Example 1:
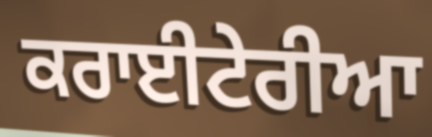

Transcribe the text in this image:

ਕਰਾਈਟੇਰੀਆ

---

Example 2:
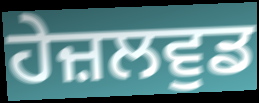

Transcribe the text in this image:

ਹੇਜ਼ਲਵੁਡ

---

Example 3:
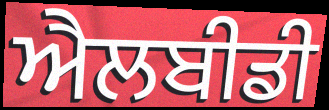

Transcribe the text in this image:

ਐਲਬੀਡੀ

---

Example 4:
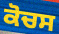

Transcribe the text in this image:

ਕੋਚਸ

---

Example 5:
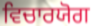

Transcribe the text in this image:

ਵਿਚਾਰਯੋਗ